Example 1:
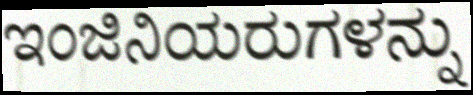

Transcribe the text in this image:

ಇಂಜಿನಿಯರುಗಳನ್ನು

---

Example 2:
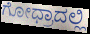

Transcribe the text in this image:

ಗೋಧ್ರಾದಲ್ಲಿ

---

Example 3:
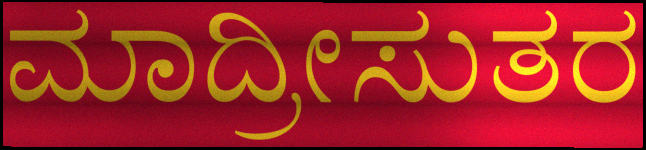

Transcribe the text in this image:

ಮಾದ್ರೀಸುತರ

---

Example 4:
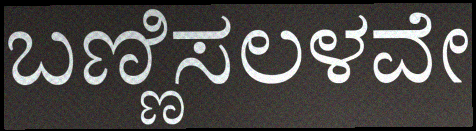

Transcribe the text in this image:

ಬಣ್ಣಿಸಲಳವೇ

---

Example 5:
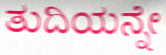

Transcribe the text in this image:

ತುದಿಯನ್ನೇ